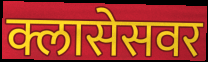
क्लासेसवर